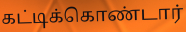
கட்டிக்கொண்டார்